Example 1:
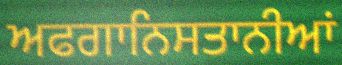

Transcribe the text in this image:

ਅਫਗਾਨਿਸਤਾਨੀਆਂ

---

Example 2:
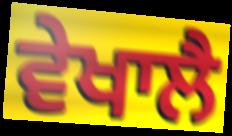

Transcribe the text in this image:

ਵੇਖਾਲੈ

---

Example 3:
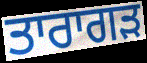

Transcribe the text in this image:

ਤਾਰਾਗੜ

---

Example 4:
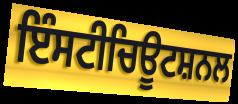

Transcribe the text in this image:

ਇੰਸਟੀਚਿਊਟਸ਼ਨਲ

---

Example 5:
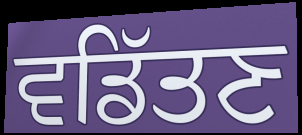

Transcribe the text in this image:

ਵਡਿੱਤਣ